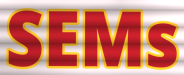
SEMs